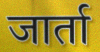
जार्ता